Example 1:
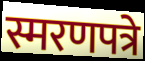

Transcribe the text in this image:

स्मरणपत्रे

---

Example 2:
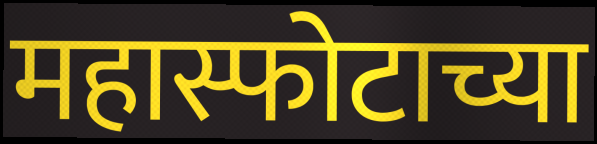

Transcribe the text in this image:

महास्फोटाच्या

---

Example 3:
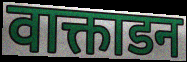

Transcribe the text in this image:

वाक्ताडन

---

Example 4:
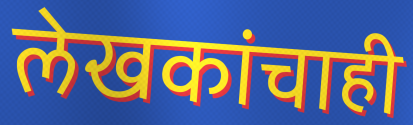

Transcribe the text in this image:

लेखकांचाही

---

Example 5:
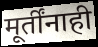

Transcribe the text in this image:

मूर्तींनाही